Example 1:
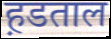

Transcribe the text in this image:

ह़डताल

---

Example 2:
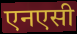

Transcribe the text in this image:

एनएसी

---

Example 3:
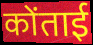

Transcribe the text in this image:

कोंताई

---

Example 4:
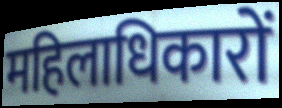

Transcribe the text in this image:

महिलाधिकारों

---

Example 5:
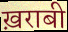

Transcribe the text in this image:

ख़राबी